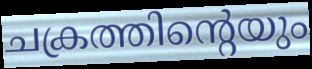
ചക്രത്തിന്റെയും